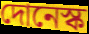
দোনেস্ক